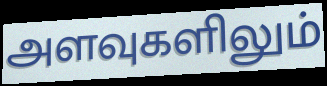
அளவுகளிலும்